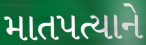
માતપત્યાને